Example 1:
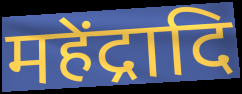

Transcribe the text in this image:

महेंद्रादि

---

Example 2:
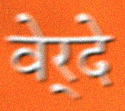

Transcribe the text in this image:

वेर्दे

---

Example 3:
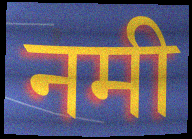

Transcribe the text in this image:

नमी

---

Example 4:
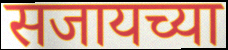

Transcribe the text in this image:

सजायच्या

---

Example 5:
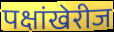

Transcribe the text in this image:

पक्षांखेरीज